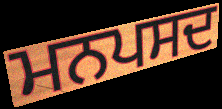
ਮਨਪਸਦ